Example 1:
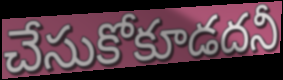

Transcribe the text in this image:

చేసుకోకూడదనీ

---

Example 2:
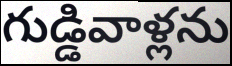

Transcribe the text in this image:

గుడ్డివాళ్లను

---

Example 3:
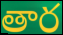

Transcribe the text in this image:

తార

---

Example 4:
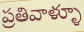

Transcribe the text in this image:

ప్రతివాళ్ళూ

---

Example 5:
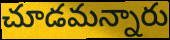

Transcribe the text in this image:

చూడమన్నారు